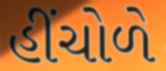
હીંચોળે